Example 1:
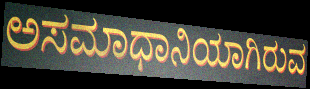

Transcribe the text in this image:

ಅಸಮಾಧಾನಿಯಾಗಿರುವ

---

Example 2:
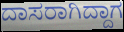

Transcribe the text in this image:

ದಾಸರಾಗಿದ್ದಾಗ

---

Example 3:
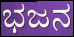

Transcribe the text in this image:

ಭಜನ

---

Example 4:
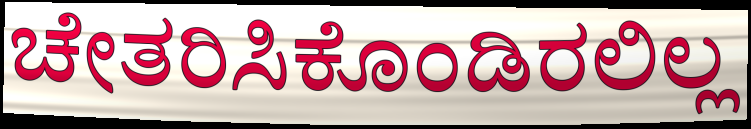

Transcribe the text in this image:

ಚೇತರಿಸಿಕೊಂಡಿರಲಿಲ್ಲ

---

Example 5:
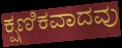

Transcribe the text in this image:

ಕ್ಷಣಿಕವಾದವು